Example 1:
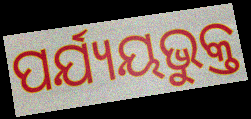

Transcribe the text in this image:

ପର୍ଯ୍ୟୟଭୁକ୍ତ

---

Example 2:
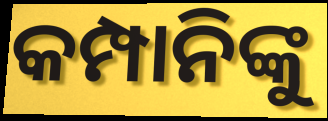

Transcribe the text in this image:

କମ୍ପାନିଙ୍କୁ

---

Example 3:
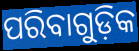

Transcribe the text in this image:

ପରିବାଗୁଡ଼ିକ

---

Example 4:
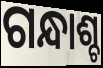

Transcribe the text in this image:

ଗନ୍ଧାଶ୍ଚ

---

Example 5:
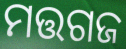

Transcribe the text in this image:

ମତ୍ତଗଜ